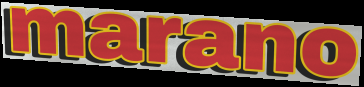
marano